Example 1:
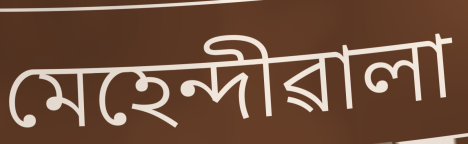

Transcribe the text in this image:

মেহেন্দীৱালা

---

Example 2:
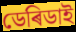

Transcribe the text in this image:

ডেৰিডাই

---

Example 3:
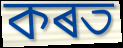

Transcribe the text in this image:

কৰত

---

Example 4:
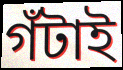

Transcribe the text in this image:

গঁটাই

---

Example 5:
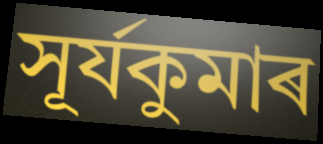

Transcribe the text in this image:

সূৰ্যকুমাৰ